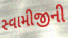
સ્વામીજીની